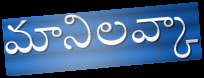
మానిలవ్కా